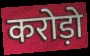
करोड़ो